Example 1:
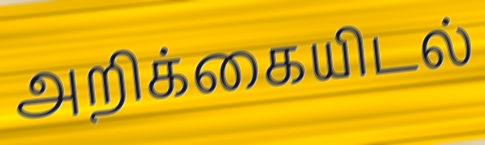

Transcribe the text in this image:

அறிக்கையிடல்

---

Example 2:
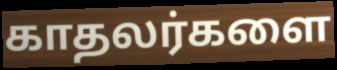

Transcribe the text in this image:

காதலர்களை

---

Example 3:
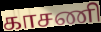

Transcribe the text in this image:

காசணி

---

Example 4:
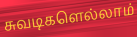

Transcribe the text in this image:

சுவடிகளெல்லாம்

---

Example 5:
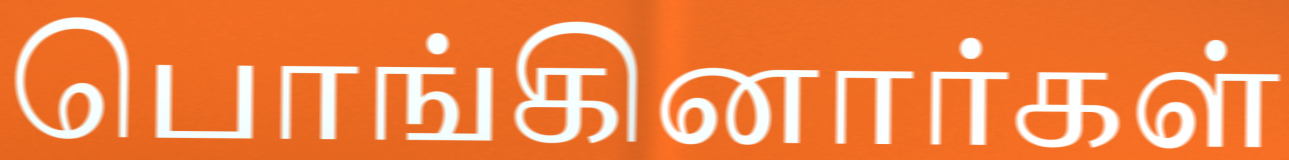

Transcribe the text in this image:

பொங்கினார்கள்